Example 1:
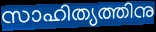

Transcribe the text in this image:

സാഹിത്യത്തിനു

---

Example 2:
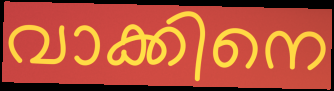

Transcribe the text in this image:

വാക്കിനെ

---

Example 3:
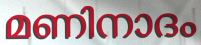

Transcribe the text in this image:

മണിനാദം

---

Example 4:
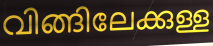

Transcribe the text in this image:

വിങ്ങിലേക്കുള്ള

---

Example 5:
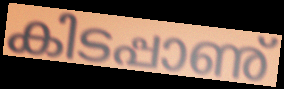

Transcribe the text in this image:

കിടപ്പാണു്